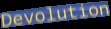
Devolution